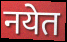
नयेत